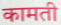
कामती